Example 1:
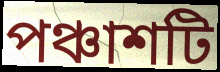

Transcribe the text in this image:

পঞ্চাশটি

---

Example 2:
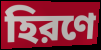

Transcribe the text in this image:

হিরণে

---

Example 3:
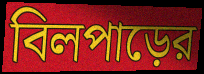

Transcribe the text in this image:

বিলপাড়ের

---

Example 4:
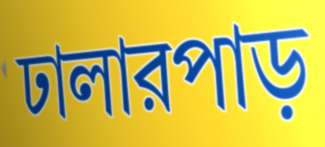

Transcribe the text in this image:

ঢালারপাড়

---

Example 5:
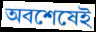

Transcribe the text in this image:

অবশেষেই